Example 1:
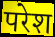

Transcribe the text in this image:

परेश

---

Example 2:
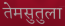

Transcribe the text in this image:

तेमसुतुला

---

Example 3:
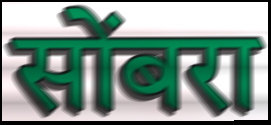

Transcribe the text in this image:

सोंबरा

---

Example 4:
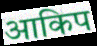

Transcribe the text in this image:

आकिप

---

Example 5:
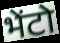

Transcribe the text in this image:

भेंटो